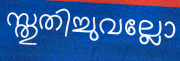
സ്തുതിച്ചുവല്ലോ